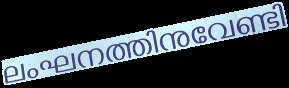
ലംഘനത്തിനുവേണ്ടി